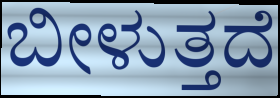
ಬೀಳುತ್ತದೆ